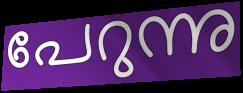
പേറുന്നു